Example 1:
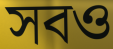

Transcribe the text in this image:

সবও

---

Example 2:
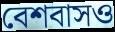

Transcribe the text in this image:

বেশবাসও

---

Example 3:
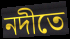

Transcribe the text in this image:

নদীতে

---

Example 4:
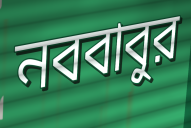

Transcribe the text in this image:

নববাবুর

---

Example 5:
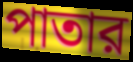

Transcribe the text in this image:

পাতার